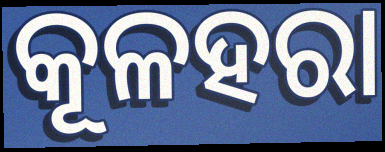
କୂଳହରା